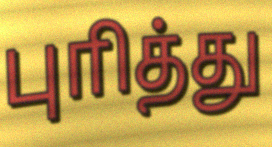
புரித்து